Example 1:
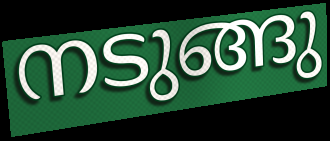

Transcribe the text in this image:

നടുങ്ങു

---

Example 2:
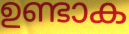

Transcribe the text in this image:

ഉണ്ടാക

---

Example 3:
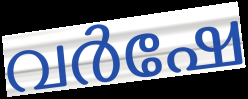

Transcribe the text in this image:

വർഷേ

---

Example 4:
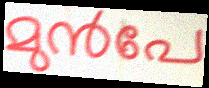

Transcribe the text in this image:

മുൻപേ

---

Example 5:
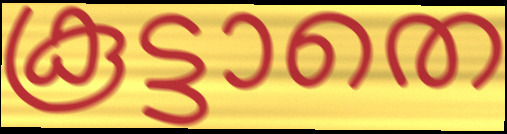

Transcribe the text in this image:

കൂട്ടാതെ